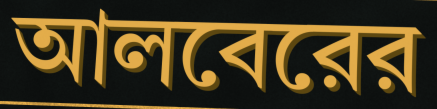
আলবেরের